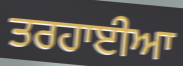
ਤਰਹਾਈਆ